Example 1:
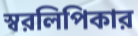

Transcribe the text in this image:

স্বরলিপিকার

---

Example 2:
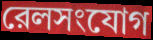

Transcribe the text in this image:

রেলসংযোগ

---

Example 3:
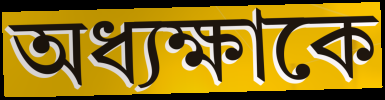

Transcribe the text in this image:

অধ্যক্ষাকে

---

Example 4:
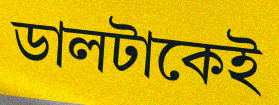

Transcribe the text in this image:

ডালটাকেই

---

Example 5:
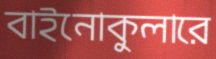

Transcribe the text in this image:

বাইনোকুলারে